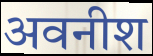
अवनीश